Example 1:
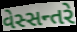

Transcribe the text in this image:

વેસ્સન્તરે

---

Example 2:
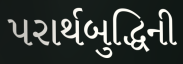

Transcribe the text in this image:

પરાર્થબુદ્ધિની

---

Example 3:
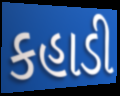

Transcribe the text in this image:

કહાડી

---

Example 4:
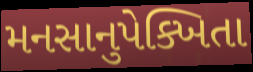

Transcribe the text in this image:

મનસાનુપેક્ખિતા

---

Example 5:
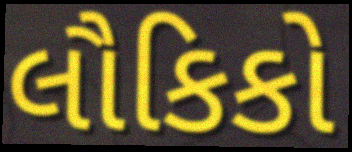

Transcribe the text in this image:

લૌકિકો